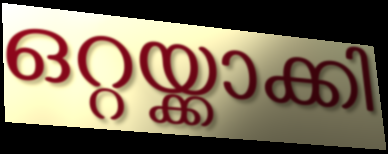
ഒറ്റയ്ക്കാക്കി